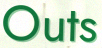
Outs